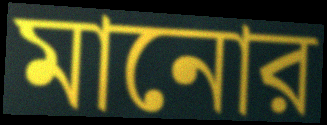
মানোর